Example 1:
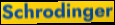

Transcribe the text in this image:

Schrodinger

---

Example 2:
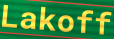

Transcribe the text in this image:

Lakoff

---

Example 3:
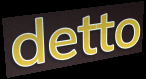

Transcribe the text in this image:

detto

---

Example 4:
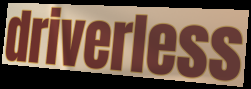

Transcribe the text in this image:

driverless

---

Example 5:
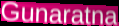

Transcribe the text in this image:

Gunaratna